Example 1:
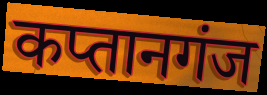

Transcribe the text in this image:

कप्तानगंज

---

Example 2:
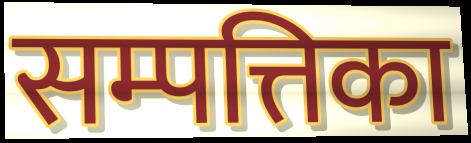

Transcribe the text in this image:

सम्पत्तिका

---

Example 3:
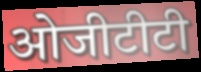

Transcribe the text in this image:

ओजीटीटी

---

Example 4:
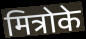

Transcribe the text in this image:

मित्रोके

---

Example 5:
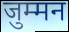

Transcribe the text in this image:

जुम्मन